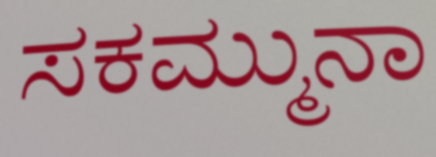
ಸಕಮ್ಮುನಾ